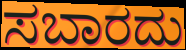
ಸಬಾರದು